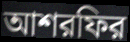
আশরফির